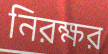
নিরক্ষর